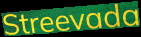
Streevada